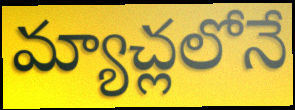
మ్యాచ్లలోనే